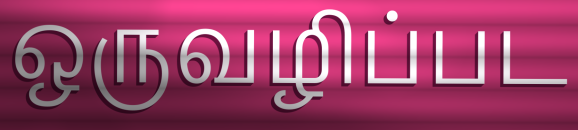
ஒருவழிப்பட